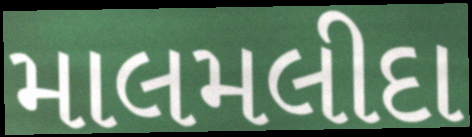
માલમલીદા